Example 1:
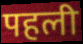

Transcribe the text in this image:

पहली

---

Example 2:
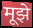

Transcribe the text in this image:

मूझे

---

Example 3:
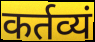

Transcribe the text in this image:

कर्तव्यं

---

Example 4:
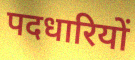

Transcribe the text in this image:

पदधारियों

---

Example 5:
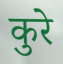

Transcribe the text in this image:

कुरे